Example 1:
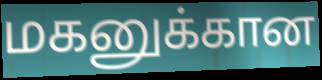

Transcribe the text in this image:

மகனுக்கான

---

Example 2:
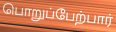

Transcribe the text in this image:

பொறுப்பேற்பார்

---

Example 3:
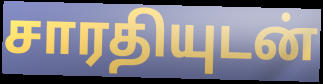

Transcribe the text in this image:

சாரதியுடன்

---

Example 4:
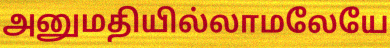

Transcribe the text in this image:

அனுமதியில்லாமலேயே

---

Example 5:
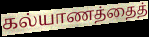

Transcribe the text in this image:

கல்யாணத்தைத்